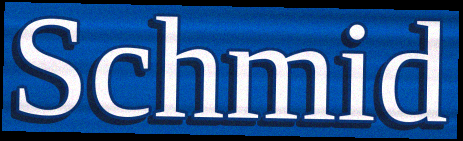
Schmid